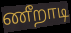
ணீறாடி